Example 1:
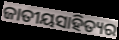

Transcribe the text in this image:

ଜାତୀୟସାହିତ୍ୟର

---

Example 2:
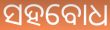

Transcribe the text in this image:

ସହବୋଧ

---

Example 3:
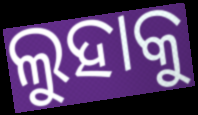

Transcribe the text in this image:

ଲୁହାକୁ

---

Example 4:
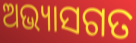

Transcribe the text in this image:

ଅଭ୍ଯାସଗତ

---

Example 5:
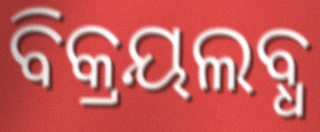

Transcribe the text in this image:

ବିକ୍ରୟଲବ୍ଧ